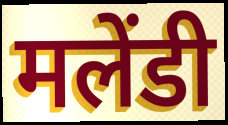
मलेंडी